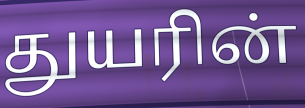
துயரின்